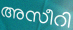
അസീറി